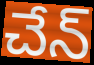
చేన్